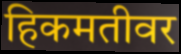
हिकमतीवर